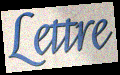
Lettre